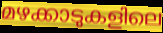
മഴക്കാടുകളിലെ